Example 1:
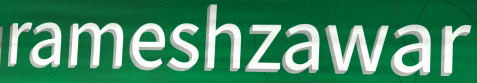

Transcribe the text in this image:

rameshzawar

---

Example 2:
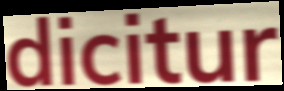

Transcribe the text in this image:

dicitur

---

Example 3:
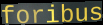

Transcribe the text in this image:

foribus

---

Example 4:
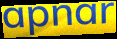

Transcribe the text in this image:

apnar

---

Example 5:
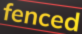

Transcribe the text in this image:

fenced